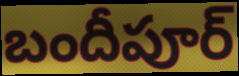
బందీపూర్